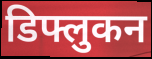
डिफ्लुकन